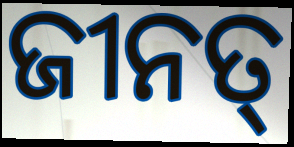
ଜୀନତ୍